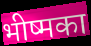
भीष्मका